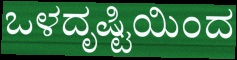
ಒಳದೃಷ್ಟಿಯಿಂದ